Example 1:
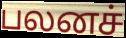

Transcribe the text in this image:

பலனச்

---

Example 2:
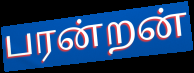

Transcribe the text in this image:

பரன்றன்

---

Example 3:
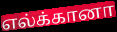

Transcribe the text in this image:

எல்க்கானா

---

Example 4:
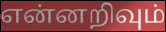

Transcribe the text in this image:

என்னறிவும்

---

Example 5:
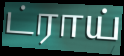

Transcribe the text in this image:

ட்ராய்